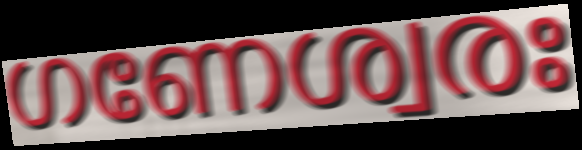
ഗണേശ്വരഃ